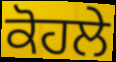
ਕੋਹਲੇ